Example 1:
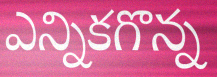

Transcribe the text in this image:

ఎన్నికగొన్న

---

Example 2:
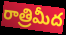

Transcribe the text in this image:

రాత్రిమీద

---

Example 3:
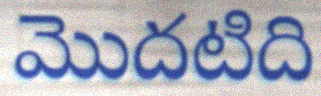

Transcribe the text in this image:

మొదటిది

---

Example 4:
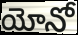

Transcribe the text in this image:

యోనో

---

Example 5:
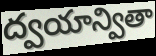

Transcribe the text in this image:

ద్వయాన్వితా